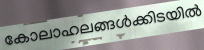
കോലാഹലങ്ങൾക്കിടയിൽ